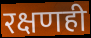
रक्षणही